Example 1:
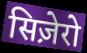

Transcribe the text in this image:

सिज़ेरो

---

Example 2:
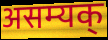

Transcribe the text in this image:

असम्यक्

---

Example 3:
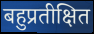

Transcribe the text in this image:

बहुप्रतीक्षित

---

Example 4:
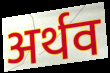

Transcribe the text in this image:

अर्थव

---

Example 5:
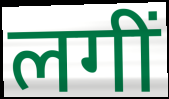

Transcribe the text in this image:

लगीं